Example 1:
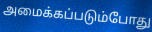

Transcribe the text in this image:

அமைக்கப்படும்போது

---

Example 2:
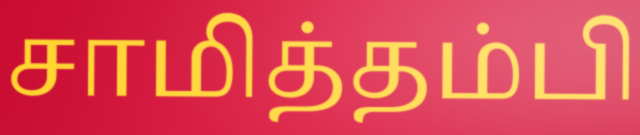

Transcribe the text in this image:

சாமித்தம்பி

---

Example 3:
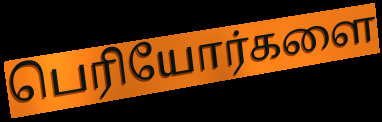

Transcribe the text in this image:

பெரியோர்களை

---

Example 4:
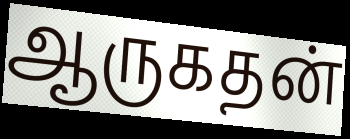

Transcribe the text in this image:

ஆருகதன்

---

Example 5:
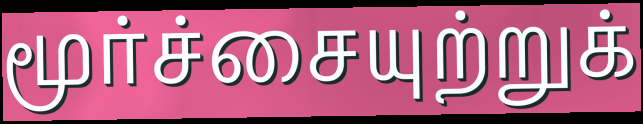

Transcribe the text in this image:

மூர்ச்சையுற்றுக்